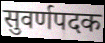
सुवर्णपदक